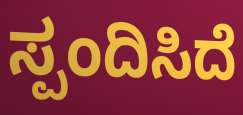
ಸ್ಪಂದಿಸಿದೆ